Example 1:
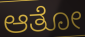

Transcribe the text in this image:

ಆತೋ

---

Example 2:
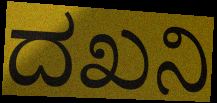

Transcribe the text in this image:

ದಖನಿ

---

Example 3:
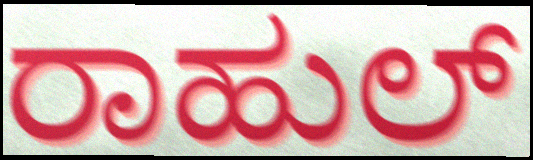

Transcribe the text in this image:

ರಾಹುಲ್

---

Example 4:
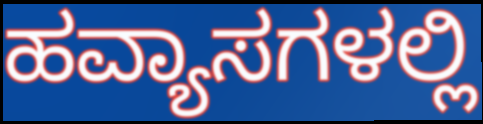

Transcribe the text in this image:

ಹವ್ಯಾಸಗಳಲ್ಲಿ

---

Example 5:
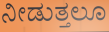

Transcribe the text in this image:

ನೀಡುತ್ತಲೂ